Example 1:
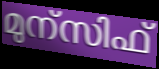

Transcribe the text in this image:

മുന്സിഫ്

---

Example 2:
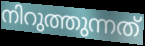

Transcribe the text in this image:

നിറുത്തുന്നത്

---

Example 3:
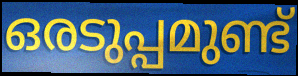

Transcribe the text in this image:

ഒരടുപ്പമുണ്ട്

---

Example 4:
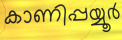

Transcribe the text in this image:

കാണിപ്പയ്യൂർ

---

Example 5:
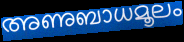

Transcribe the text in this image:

അണുബാധമൂലം